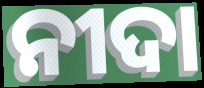
ନୀଦା